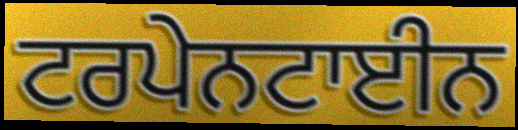
ਟਰਪੇਨਟਾਈਨ